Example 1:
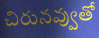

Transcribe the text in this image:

చిరునవ్వుతో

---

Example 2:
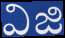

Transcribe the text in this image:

విజి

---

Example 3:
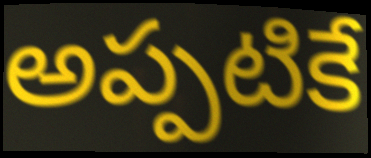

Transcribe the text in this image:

అప్పటికే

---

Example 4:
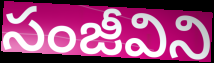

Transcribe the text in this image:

సంజీవిని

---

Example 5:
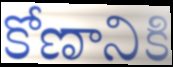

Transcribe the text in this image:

కోణానికి